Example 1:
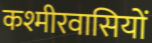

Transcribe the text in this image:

कश्मीरवासियों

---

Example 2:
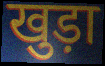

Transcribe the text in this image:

खुड़ा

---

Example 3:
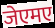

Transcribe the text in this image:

जेएमए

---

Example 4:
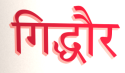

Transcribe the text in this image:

गिद्धौर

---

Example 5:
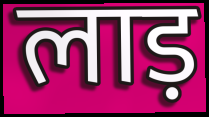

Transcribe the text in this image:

लाड़